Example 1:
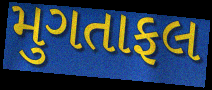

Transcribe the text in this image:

મુગતાફલ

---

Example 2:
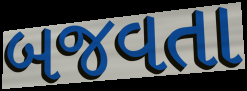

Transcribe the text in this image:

બજવતા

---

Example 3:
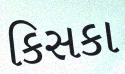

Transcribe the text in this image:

કિસકા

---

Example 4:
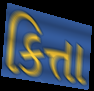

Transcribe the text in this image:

કિત્તા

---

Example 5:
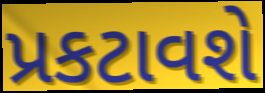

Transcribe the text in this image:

પ્રકટાવશે